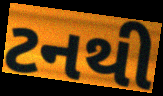
ટનથી